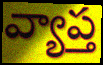
వ్యాప్త